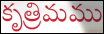
కృత్రిమము